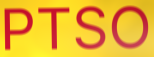
PTSO